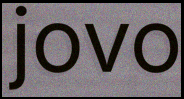
jovo